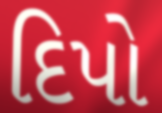
દિપો